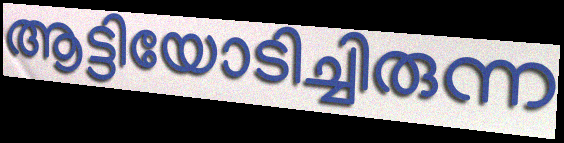
ആട്ടിയോടിച്ചിരുന്ന